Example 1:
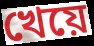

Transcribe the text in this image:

খেয়ে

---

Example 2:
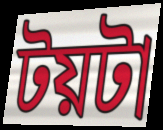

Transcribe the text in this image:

টয়টা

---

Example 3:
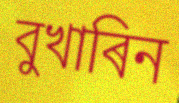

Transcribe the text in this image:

বুখাৰিন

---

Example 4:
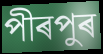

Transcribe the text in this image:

পীৰপুৰ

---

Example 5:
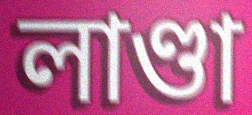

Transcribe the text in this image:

লাণ্ডা